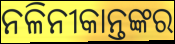
ନଳିନୀକାନ୍ତଙ୍କର